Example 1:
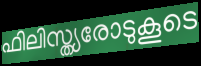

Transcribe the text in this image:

ഫിലിസ്ത്യരോടുകൂടെ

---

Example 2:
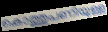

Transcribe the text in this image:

കൊത്തുപണിയുള്ള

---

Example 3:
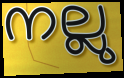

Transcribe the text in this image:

നല്ലു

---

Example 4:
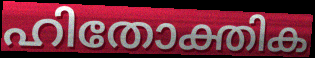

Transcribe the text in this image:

ഹിതോക്തിക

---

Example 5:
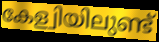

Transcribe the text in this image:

കേള്വിയിലുണ്ട്